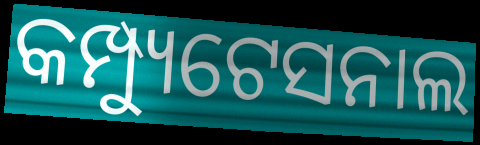
କମ୍ପ୍ୟୁଟେସନାଲ